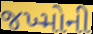
જખ્મોની